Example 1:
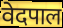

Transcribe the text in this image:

वेदपाल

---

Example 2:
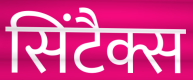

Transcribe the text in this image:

सिंटैक्स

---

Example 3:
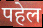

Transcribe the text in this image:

पहेल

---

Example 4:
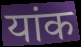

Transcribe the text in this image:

यांक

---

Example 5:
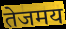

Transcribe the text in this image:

तेजमय